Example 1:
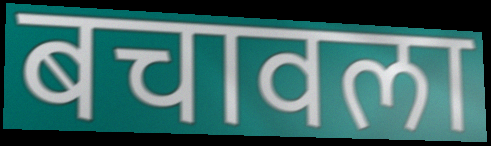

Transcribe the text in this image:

बचावला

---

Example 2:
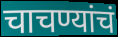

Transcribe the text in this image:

चाचण्यांचं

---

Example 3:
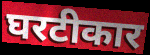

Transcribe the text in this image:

घरटीकार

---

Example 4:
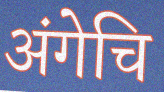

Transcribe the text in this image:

अंगेचि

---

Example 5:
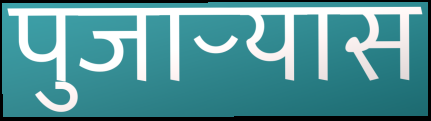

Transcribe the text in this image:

पुजाऱ्यास